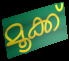
മൂക്ക്